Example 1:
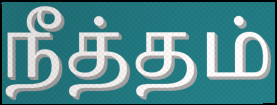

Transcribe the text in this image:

நீத்தம்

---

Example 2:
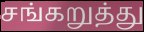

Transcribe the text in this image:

சங்கறுத்து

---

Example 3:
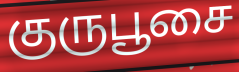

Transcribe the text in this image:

குருபூசை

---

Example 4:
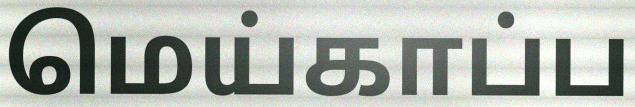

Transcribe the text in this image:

மெய்காப்ப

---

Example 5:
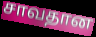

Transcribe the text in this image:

சாவதான